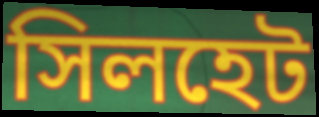
সিলহেট